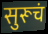
सुरूचं